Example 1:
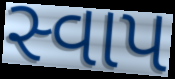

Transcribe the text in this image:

સ્વાપ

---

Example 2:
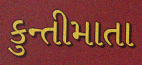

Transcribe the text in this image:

કુન્તીમાતા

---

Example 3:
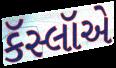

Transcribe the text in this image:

કૅસ્લૉએ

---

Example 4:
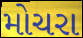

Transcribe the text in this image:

મોચરા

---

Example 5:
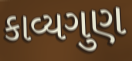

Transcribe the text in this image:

કાવ્યગુણ